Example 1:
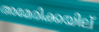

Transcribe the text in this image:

അമേരിക്കയില്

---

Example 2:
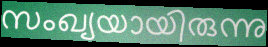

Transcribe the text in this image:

സംഖ്യയായിരുന്നു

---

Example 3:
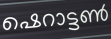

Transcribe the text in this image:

ഷെറാട്ടൺ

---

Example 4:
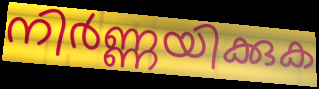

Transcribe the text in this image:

നിർണ്ണയിക്കുക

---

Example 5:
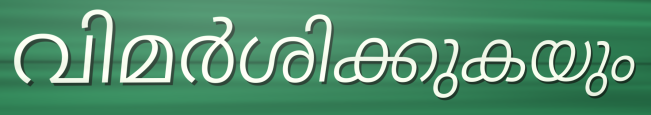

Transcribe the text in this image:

വിമർശിക്കുകയും